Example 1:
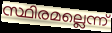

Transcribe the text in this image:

സ്ഥിരമല്ലെന്ന്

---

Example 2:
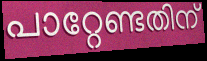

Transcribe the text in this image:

പാറ്റേണ്ടതിന്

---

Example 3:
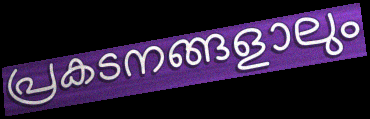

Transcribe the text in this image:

പ്രകടനങ്ങളാലും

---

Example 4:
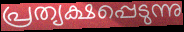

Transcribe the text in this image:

പ്രത്യക്ഷപ്പെടുന്നു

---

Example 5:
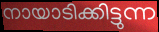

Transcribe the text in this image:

നായാടിക്കിട്ടുന്ന